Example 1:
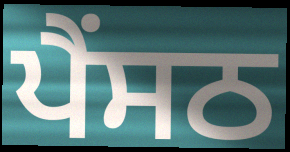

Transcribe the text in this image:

ਪੈਂਸਠ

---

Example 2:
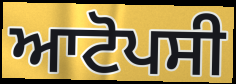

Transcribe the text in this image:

ਆਟੋਪਸੀ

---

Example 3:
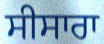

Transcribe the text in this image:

ਸੀਸਾਰਾ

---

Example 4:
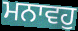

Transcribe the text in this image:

ਮਨਾਵਹੁ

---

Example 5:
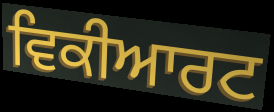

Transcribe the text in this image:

ਵਿਕੀਆਰਟ